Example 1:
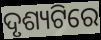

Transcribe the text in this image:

ଦୃଶ୍ୟଟିରେ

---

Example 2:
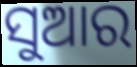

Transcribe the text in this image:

ସୁଆର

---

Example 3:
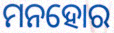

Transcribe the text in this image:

ମନହୋର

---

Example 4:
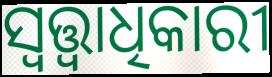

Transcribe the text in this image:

ସ୍ବତ୍ତ୍ବାଧିକାରୀ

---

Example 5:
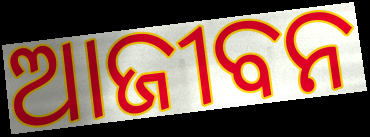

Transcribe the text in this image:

ଆଜୀବନ